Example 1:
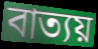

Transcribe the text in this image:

বাত্যয়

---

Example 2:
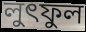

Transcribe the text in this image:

লুৎফুল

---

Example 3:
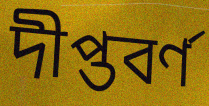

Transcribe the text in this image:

দীপ্তবর্ণ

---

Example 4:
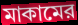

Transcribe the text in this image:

মাকামের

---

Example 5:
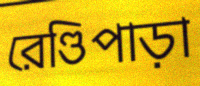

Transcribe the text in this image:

রেণ্ডিপাড়া